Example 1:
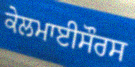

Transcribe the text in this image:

ਕੇਲਮਾਈਸੌਰਸ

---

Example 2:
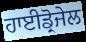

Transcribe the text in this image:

ਹਾਈਡ੍ਰੋਜੇਲ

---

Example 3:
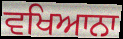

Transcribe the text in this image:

ਵਖਿਆਨਾ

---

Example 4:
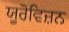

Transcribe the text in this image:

ਯੂਰੋਵਿਜ਼ਨ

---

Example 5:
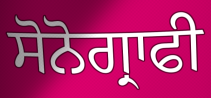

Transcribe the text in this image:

ਸੋਨੋਗ੍ਰਾਫੀ